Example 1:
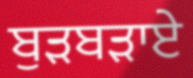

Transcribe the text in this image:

ਬੁੜਬੜਾਏ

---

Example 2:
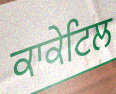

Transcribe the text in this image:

ਕਾਕੇਟਿਲ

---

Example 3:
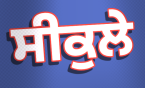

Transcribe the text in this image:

ਸੀਕੁਲੇ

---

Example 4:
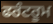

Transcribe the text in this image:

ਫਰੰਟਰੂਮ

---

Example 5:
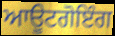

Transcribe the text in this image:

ਆਊਟਗੋਇੰਗ